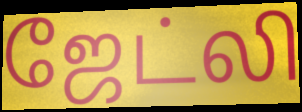
ஜேட்லி